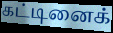
கட்டினைக்